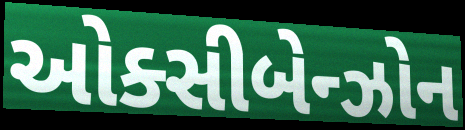
ઓક્સીબેન્ઝોન